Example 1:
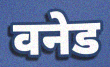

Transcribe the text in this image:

वनेड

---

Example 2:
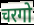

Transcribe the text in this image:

चरगो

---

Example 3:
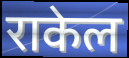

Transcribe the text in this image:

राकेल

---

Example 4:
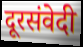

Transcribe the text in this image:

दूरसंवेदी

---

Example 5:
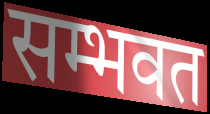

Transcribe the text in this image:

सम्भवत